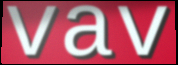
vav